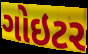
ગોઇટર